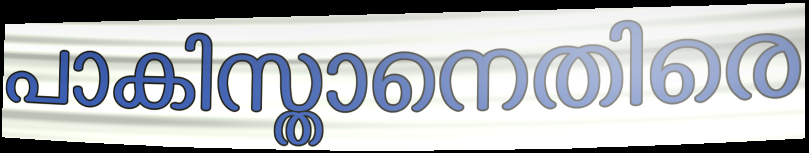
പാകിസ്താനെതിരെ